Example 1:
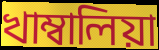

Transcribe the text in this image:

খাম্বালিয়া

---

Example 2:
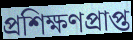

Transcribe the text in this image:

প্ৰশিক্ষণপ্ৰাপ্ত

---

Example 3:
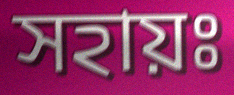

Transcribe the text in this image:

সহায়ঃ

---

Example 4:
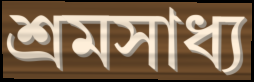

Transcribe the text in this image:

শ্ৰমসাধ্য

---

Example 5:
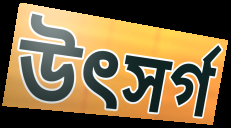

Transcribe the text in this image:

উৎসৰ্গ